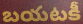
బయటకీ